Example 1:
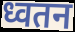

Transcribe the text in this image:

ध्वतन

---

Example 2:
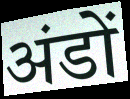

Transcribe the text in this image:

अंडों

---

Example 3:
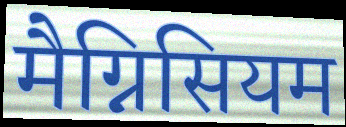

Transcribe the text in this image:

मैग्निसियम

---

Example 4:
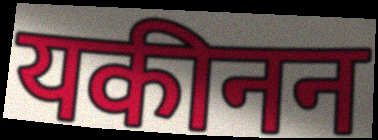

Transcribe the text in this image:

यकीनन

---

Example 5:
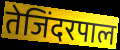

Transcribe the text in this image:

तेजिंदरपाल